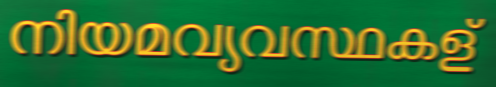
നിയമവ്യവസ്ഥകള്